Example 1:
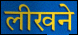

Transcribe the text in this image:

लीखने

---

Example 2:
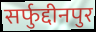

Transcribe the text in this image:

सर्फुद्दीनपुर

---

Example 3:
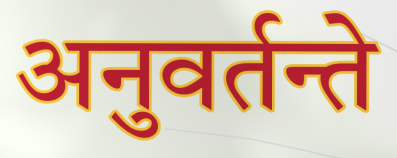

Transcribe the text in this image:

अनुवर्तन्ते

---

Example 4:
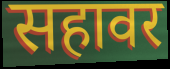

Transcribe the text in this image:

सहावर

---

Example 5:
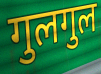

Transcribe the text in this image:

गुलगुल